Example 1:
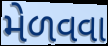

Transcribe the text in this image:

મેળવવા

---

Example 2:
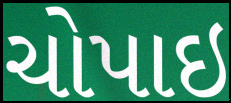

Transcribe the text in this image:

ચોપાઇ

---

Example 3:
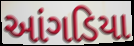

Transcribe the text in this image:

આંગડિયા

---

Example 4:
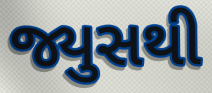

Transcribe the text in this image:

જ્યુસથી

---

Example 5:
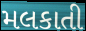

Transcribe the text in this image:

મલકાતી